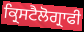
ਕ੍ਰਿਸਟੈਲੋਗ੍ਰਾਫੀ